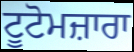
ਟੂਟੋਮਜ਼ਾਰਾ